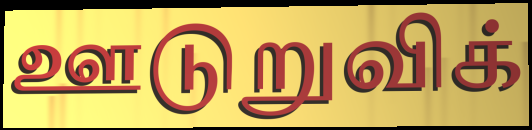
ஊடுறுவிக்